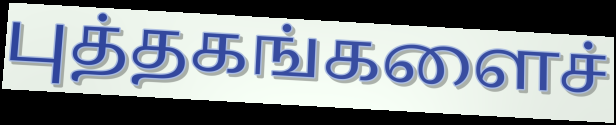
புத்தகங்களைச்